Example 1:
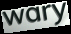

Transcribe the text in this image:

wary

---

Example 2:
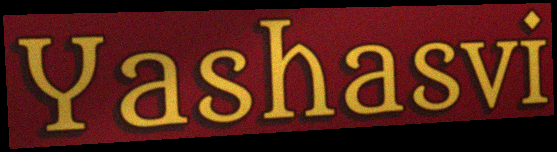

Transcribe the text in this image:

Yashasvi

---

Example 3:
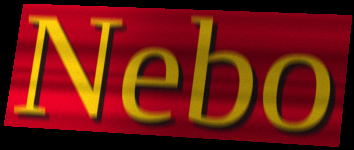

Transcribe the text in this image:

Nebo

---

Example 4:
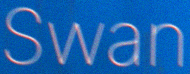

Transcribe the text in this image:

Swan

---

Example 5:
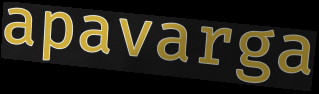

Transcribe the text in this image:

apavarga